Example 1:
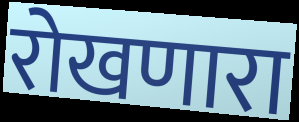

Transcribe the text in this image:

रोखणारा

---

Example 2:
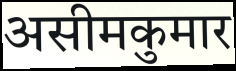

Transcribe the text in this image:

असीमकुमार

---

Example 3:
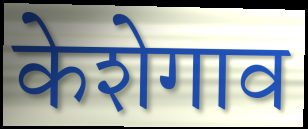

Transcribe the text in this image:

केशेगाव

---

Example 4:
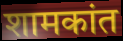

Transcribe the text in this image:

शामकांत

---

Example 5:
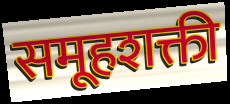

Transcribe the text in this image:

समूहशक्ती